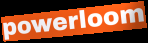
powerloom